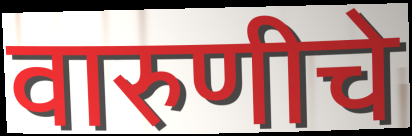
वारुणीचे